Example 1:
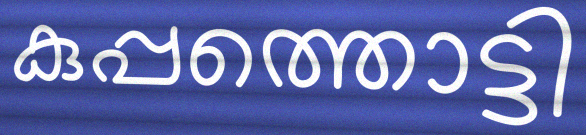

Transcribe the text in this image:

കുപ്പത്തൊട്ടി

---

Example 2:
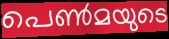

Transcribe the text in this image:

പെൺമയുടെ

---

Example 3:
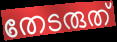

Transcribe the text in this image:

തേടരുത്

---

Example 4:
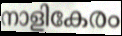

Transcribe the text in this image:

നാളികേരം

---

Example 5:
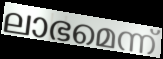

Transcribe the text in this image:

ലാഭമെന്ന്